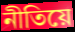
নীতিয়ে